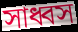
সাধ্বস